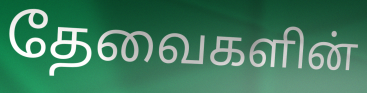
தேவைகளின்